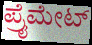
ಪ್ರೈಮೇಟ್